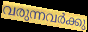
വരുന്നവർക്കു